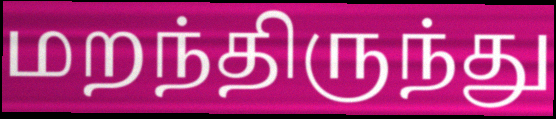
மறந்திருந்து